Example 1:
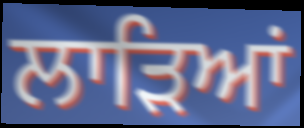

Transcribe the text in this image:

ਲਾੜਿਆਂ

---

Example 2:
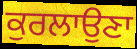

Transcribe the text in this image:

ਕੁਰਲਾਉਣਾ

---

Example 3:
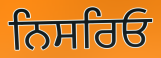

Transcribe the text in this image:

ਨਿਸਰਿਓ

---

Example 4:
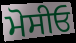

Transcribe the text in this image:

ਮੋਸੀਓ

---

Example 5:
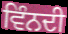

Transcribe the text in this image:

ਵਿੰਨਦੀ